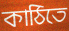
কাঠিতে